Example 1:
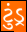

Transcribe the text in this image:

ટુંડ્ર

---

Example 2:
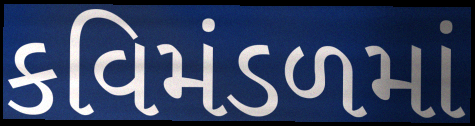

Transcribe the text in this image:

કવિમંડળમાં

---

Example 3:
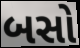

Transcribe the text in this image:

બસો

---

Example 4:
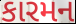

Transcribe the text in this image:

કારમન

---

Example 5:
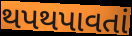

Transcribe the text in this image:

થપથપાવતાં